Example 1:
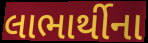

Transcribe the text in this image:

લાભાર્થીના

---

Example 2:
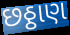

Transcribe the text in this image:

છઠ્ઠાણ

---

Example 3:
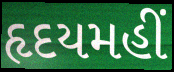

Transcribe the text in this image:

હૃદયમહીં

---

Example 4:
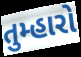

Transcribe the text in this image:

તુમ્હારો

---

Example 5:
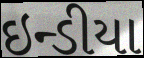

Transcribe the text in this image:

ઇન્ડીયા